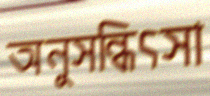
অনুসন্ধিৎসা